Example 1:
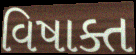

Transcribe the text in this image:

વિષાક્ત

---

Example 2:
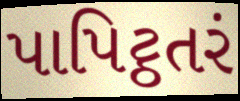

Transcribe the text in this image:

પાપિટ્ઠતરં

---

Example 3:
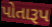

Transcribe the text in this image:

પોતારૂપ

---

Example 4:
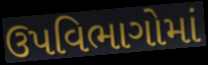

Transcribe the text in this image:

ઉપવિભાગોમાં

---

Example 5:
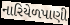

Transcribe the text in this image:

નારિયેળપાણી